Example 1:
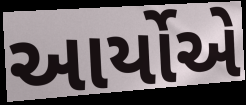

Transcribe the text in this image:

આર્યોએ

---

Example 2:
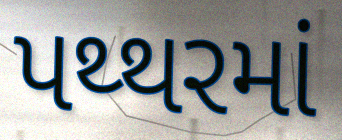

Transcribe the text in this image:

પથ્થરમાં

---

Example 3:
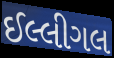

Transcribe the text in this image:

ઈલ્લીગલ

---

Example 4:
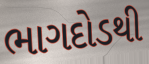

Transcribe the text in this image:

ભાગદોડથી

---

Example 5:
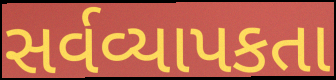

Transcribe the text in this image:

સર્વવ્યાપકતા